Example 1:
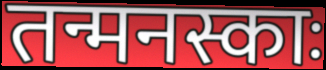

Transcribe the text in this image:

तन्मनस्काः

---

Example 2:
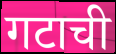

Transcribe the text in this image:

गटाची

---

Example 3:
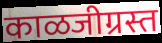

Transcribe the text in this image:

काळजीग्रस्त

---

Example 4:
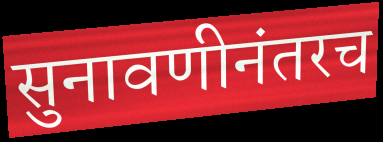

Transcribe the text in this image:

सुनावणीनंतरच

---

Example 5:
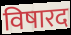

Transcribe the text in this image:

विषारद